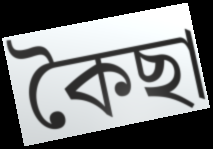
কৈছা